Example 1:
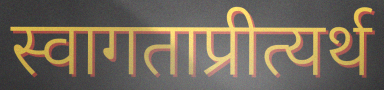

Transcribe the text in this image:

स्वागताप्रीत्यर्थ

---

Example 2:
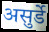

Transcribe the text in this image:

असुर्डे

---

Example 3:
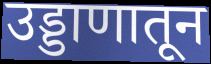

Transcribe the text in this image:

उड्डाणातून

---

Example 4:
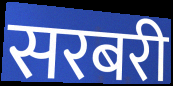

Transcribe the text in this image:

सरबरी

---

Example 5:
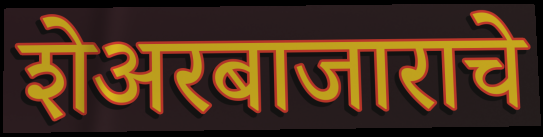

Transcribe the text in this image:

शेअरबाजाराचे